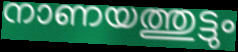
നാണയത്തുട്ടും